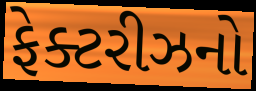
ફેક્ટરીઝનો